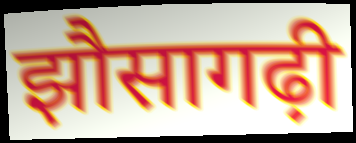
झौसागढ़ी